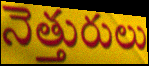
నెత్తురులు